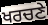
ਖਰਚਣੇ